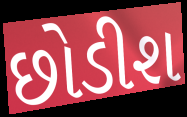
છોડીશ